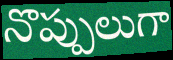
నొప్పులుగా